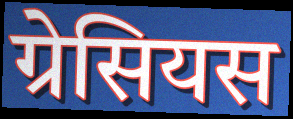
ग्रेसियस